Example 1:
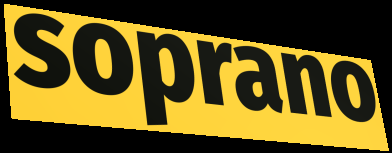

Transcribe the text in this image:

soprano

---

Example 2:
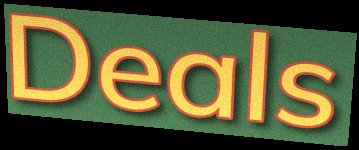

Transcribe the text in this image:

Deals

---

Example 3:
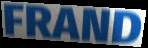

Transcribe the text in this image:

FRAND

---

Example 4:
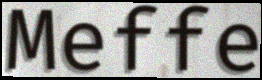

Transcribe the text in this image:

Meffe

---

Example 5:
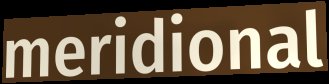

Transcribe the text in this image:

meridional